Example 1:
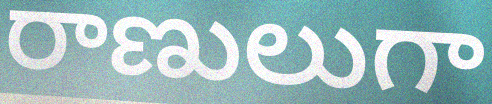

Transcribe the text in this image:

రాణులుగా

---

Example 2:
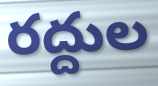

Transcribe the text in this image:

రద్దుల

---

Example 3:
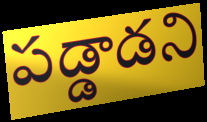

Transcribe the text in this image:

పడ్డాడని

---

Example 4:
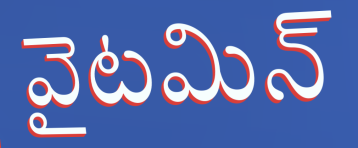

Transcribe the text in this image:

వైటమిన్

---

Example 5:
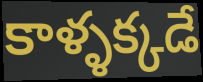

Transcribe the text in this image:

కాళ్ళక్కడే